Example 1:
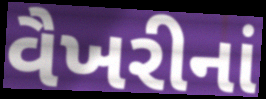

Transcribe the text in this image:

વૈખરીનાં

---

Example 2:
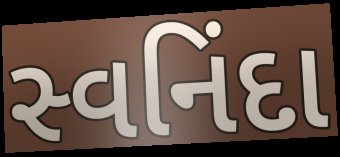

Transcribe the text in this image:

સ્વનિંદા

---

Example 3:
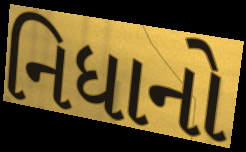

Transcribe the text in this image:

નિધાનો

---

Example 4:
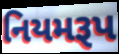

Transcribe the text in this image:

નિયમરૂપ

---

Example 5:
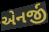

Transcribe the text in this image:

એનર્જી